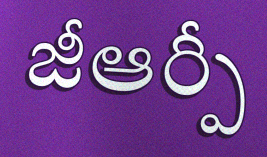
జీఆర్పీ